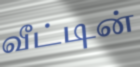
வீட்டின்